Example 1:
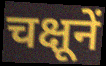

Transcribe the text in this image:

चक्षूनें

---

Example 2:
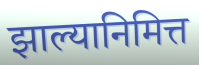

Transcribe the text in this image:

झाल्यानिमित्त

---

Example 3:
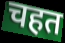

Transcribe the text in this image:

चहत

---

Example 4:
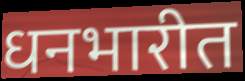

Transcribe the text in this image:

धनभारीत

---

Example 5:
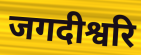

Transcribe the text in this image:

जगदीश्वरि